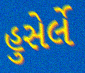
હુસેર્લે